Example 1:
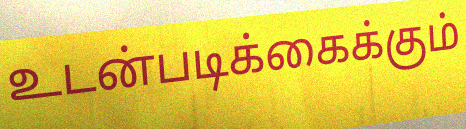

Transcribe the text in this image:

உடன்படிக்கைக்கும்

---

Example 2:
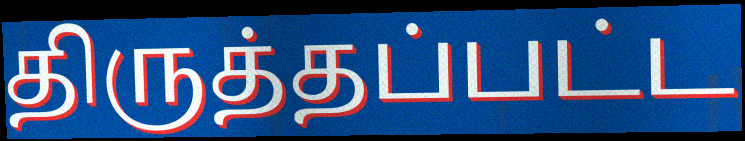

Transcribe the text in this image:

திருத்தப்பட்ட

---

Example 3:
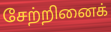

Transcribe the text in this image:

சேற்றினைக்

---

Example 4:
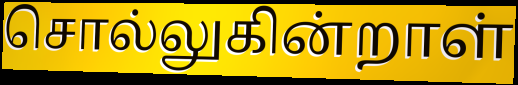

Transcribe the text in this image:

சொல்லுகின்றாள்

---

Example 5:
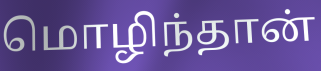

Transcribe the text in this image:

மொழிந்தான்